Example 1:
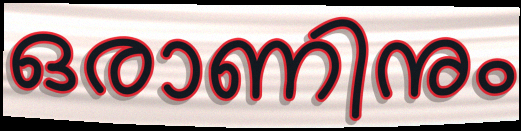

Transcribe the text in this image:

ഒരാണിനും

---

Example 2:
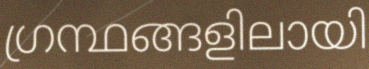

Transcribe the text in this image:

ഗ്രന്ഥങ്ങളിലായി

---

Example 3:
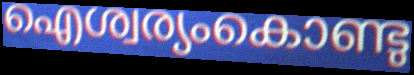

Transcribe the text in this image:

ഐശ്വര്യംകൊണ്ടു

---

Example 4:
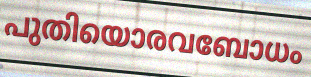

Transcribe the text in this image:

പുതിയൊരവബോധം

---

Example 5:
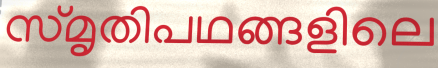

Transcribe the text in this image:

സ്മൃതിപഥങ്ങളിലെ